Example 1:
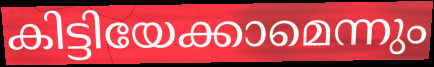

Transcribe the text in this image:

കിട്ടിയേക്കാമെന്നും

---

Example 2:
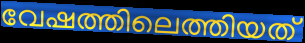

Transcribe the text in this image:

വേഷത്തിലെത്തിയത്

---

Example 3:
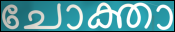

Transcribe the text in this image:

ചോക്താ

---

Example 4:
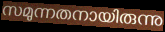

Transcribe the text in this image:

സമുന്നതനായിരുന്നു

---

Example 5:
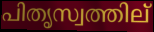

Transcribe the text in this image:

പിതൃസ്വത്തില്